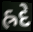
હ્રદે